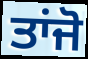
ਤਾਂਜੋ